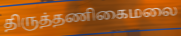
திருத்தணிகைமலை